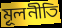
মূলনীতি